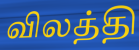
விலத்தி